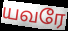
யவரே